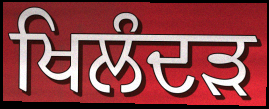
ਖਿਲੰਦੜ